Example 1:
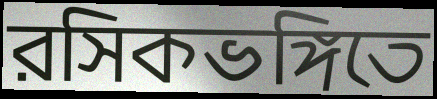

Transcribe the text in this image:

রসিকভঙ্গিতে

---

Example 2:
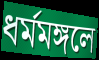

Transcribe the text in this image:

ধর্মমঙ্গলে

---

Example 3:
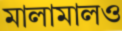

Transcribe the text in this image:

মালামালও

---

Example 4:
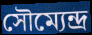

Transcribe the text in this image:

সৌম্যেন্দ্র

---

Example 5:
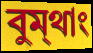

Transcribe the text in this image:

বুম্থাং